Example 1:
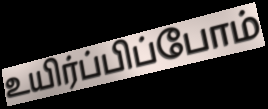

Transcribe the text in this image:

உயிர்ப்பிப்போம்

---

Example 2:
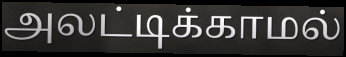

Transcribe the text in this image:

அலட்டிக்காமல்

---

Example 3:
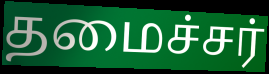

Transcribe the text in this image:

தமைச்சர்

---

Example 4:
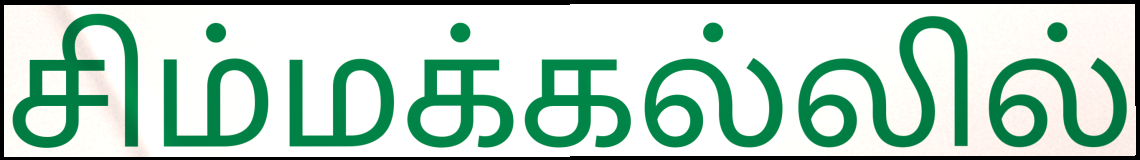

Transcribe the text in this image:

சிம்மக்கல்லில்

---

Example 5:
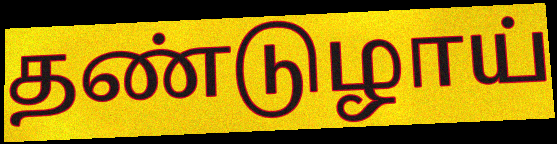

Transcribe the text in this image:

தண்டுழாய்